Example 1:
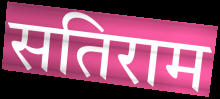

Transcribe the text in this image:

सतिराम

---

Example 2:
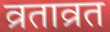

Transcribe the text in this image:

व्रताव्रत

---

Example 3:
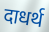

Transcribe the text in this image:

दाधर्थ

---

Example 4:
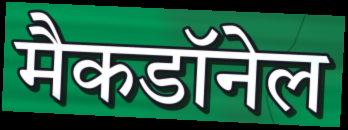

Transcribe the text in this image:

मैकडॉनेल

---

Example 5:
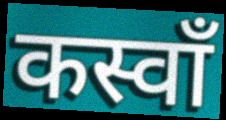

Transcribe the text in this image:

कस्वाँ